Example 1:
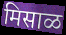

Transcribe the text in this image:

मिसाळ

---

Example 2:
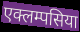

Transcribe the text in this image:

एक्लम्पसिया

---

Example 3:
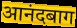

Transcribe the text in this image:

आनंदबाग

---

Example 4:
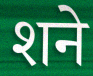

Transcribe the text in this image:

शने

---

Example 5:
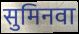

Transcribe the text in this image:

सुमिनवा